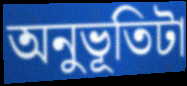
অনুভূতিটা